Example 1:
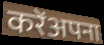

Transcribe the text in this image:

करेंअपना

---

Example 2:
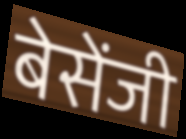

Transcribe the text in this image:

बेसेंजी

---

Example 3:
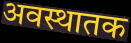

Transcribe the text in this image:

अवस्थातक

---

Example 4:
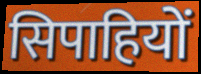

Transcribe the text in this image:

सिपाहियों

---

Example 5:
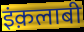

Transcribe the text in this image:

इंक़लाबी